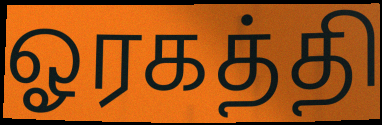
ஓரகத்தி